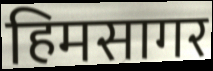
हिमसागर